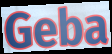
Geba